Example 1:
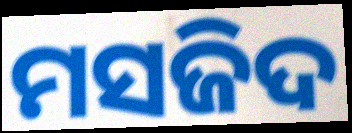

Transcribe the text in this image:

ମସଜିଦ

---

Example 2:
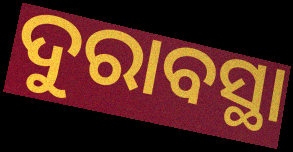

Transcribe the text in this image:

ଦୁରାବସ୍ଥା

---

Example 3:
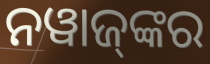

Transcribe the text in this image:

ନୱାଜ୍‍ଙ୍କର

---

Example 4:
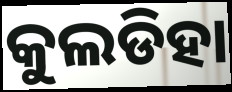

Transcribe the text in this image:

କୁଲଡିହା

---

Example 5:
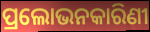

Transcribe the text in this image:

ପ୍ରଲୋଭନକାରିଣୀ